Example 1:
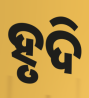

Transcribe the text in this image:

ହୃଦି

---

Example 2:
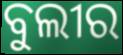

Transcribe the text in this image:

ବୁଲୀର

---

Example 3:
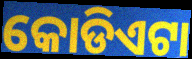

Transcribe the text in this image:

କୋଡିଏଟା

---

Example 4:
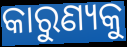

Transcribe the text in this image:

କାରୁଣ୍ୟକୁ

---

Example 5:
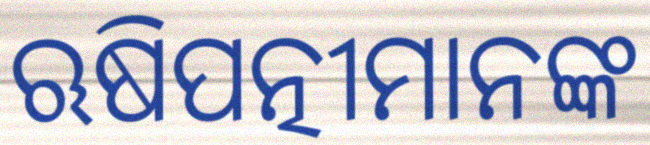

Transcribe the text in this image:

ଋଷିପତ୍ନୀମାନଙ୍କ